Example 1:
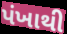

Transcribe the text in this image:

પંખાથી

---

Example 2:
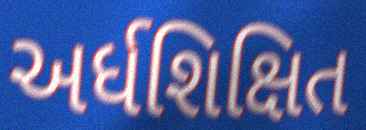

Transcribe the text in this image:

અર્ધશિક્ષિત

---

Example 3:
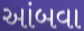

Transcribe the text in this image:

આંબવા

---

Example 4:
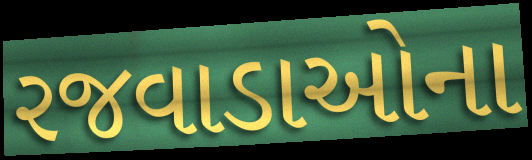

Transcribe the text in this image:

રજવાડાઓના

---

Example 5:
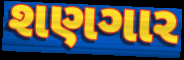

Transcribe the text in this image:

શણગાર